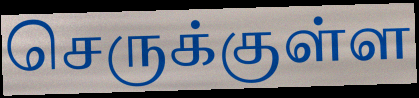
செருக்குள்ள